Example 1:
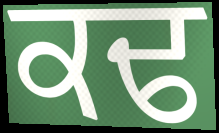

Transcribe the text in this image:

ਕਢ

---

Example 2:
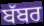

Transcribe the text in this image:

ਬੱਬਰ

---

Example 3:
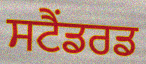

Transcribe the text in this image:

ਸਟੈਂਡਰਡ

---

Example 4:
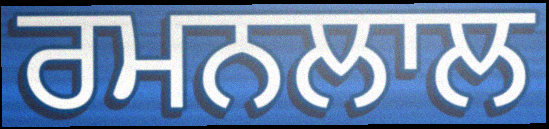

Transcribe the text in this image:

ਰਮਨਲਾਲ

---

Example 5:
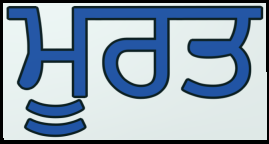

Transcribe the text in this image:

ਮੂਰਤ